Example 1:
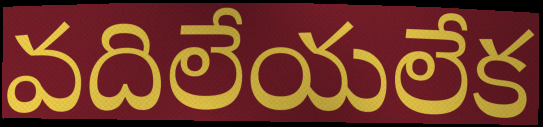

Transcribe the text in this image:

వదిలేయలేక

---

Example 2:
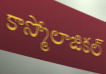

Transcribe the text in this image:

కాస్మోలాజికల్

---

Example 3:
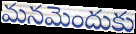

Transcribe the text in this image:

మనమెందుకు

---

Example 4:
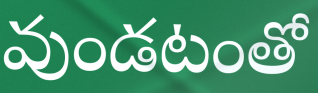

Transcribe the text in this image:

వుండటంతో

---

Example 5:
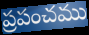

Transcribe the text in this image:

ప్రపంచము